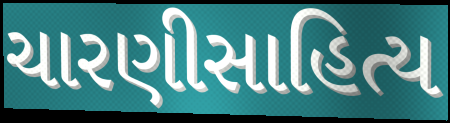
ચારણીસાહિત્ય